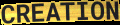
CREATION